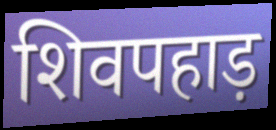
शिवपहाड़